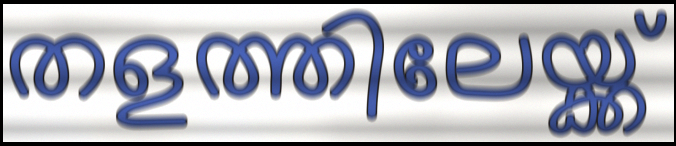
തളത്തിലേയ്ക്ക്